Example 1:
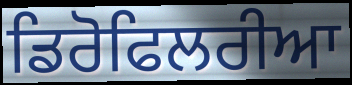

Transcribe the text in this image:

ਡਿਰੋਫਿਲਰੀਆ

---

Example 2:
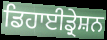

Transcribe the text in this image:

ਡਿਹਾਈਡ੍ਰੇਸ਼ਨ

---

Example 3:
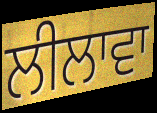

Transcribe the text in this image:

ਲੀਲਾਵਾ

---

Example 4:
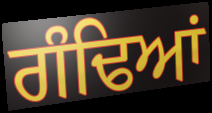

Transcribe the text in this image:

ਗੰਢਿਆਂ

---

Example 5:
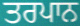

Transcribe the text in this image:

ਤਰਪਾਨ